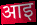
आइ